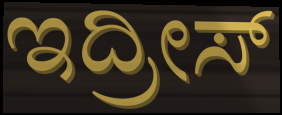
ಇದ್ರೀಸ್